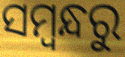
ସମ୍ୱନ୍ଧରୁ